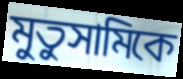
মুতুসামিকে